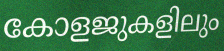
കോളജുകളിലും